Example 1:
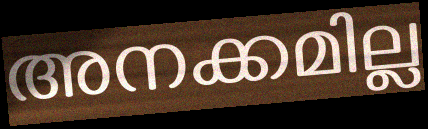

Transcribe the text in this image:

അനക്കമില്ല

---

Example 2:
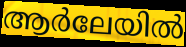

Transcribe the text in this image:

ആർലേയിൽ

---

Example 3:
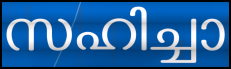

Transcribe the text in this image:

സഹിച്ചാ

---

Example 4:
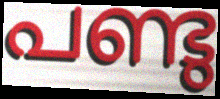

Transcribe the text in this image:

പണ്ടു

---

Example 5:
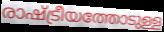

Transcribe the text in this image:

രാഷ്ട്രീയത്തോടുള്ള